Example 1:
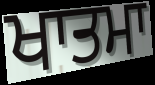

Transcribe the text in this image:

ਖਾਤਮਾ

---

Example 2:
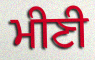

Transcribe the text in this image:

ਮੀਣੀ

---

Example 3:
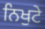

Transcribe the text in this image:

ਨਿਖੁਟੇ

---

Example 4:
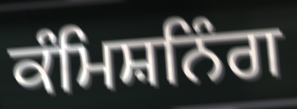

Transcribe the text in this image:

ਕੰਮਿਸ਼ਨਿੰਗ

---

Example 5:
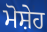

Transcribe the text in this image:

ਮੋਸ਼ੇਹ